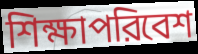
শিক্ষাপরিবেশ